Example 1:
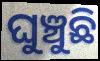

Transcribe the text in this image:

ଘୁଞ୍ଚୁଛି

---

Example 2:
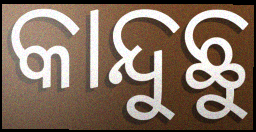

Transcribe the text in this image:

କାନ୍ଦୁଛୁ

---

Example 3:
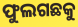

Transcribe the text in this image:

ଫୁଲଗଛକୁ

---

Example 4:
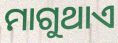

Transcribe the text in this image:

ମାଗୁଥାଏ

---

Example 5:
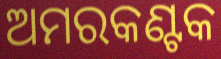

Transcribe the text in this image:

ଅମରକଣ୍ଟକ